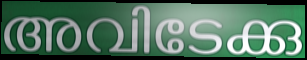
അവിടേക്കു